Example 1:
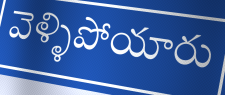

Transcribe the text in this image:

వెళ్ళిపోయారు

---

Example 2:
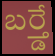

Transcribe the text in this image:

బర్త్డే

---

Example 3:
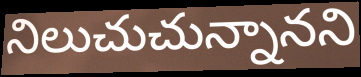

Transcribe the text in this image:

నిలుచుచున్నానని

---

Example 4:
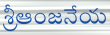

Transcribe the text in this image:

శ్రీఆంజనేయ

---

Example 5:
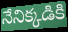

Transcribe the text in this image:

నేనిక్కడికి